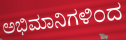
ಅಭಿಮಾನಿಗಳಿಂದ